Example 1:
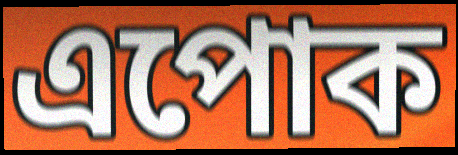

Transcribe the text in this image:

এপোক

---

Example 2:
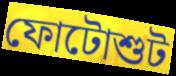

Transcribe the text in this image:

ফোটোশুট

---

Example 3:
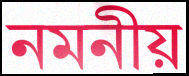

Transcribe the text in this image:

নমনীয়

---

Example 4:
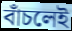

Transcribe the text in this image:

বাঁচলেই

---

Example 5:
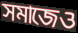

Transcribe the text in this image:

সমাজেও